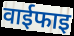
वाईफाइ